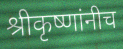
श्रीकृष्णांनीच